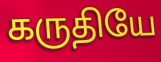
கருதியே